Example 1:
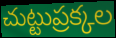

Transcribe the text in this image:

చుట్టుప్రక్కల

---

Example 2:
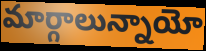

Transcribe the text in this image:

మార్గాలున్నాయో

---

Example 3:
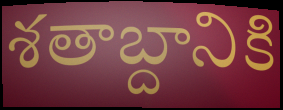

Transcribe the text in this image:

శతాబ్దానికి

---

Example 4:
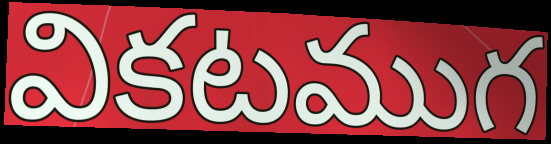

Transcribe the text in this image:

వికటముగ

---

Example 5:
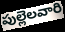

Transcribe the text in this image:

పుల్లెలవారి